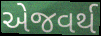
એજવર્થ